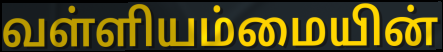
வள்ளியம்மையின்